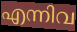
എന്നിവ